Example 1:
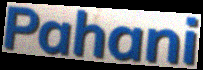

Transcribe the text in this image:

Pahani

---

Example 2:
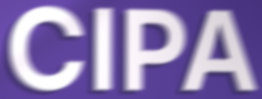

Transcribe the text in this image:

CIPA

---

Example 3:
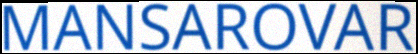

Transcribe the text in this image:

MANSAROVAR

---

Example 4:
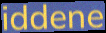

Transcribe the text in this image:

iddene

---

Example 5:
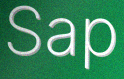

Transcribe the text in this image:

Sap